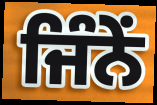
ਜਿੰਨੇਂ